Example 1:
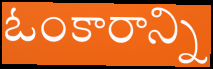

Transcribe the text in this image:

ఓంకారాన్ని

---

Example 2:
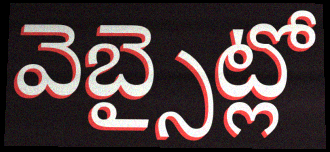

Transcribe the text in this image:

వెబ్సైట్లో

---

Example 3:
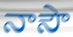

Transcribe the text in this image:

నాసౌ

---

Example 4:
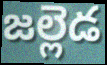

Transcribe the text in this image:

జల్లెడ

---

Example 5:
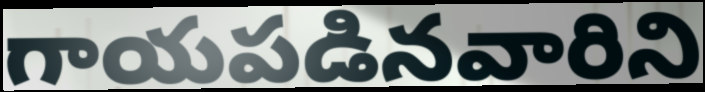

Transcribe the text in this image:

గాయపడినవారిని